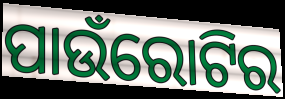
ପାଉଁରୋଟିର